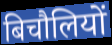
बिचौलियों